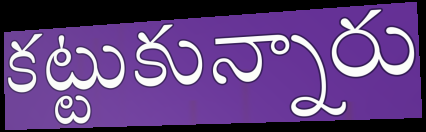
కట్టుకున్నారు